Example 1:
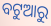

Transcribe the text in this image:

ବଟୁଆରୁ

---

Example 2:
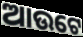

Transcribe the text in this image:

ଆଉଟେ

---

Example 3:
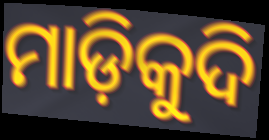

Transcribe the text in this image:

ମାଡ଼ିକୁଦି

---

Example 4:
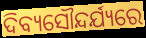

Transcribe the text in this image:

ଦିବ୍ୟସୌନ୍ଦର୍ଯ୍ୟରେ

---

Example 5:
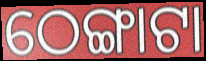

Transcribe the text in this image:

ଠେଙ୍ଗାଟା